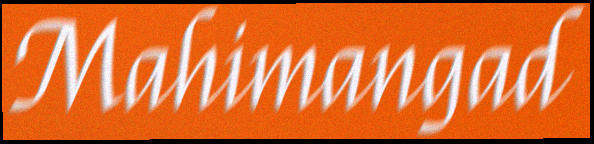
Mahimangad